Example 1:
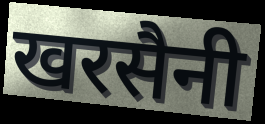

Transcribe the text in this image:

खरसैनी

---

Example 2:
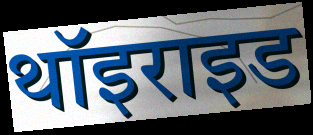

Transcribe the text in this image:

थॉइराइड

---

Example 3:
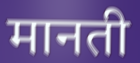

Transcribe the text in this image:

मानती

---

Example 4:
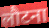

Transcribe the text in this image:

लौटना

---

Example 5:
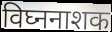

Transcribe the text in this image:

विघ्ननाशक